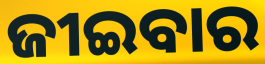
ଜୀଇବାର